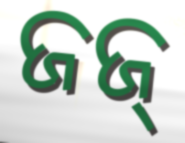
ଜଜ୍